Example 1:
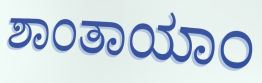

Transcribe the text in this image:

ಶಾಂತಾಯಾಂ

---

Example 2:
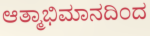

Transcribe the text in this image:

ಆತ್ಮಾಭಿಮಾನದಿಂದ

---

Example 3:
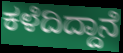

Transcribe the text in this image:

ಕಳೆದಿದ್ದಾನೆ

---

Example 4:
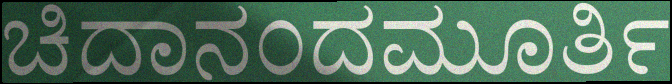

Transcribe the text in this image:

ಚಿದಾನಂದಮೂರ್ತಿ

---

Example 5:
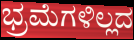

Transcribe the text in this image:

ಭ್ರಮೆಗಳಿಲ್ಲದ